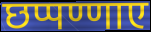
छप्पण्णाए